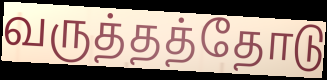
வருத்தத்தோடு